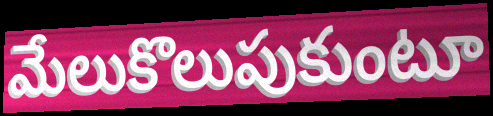
మేలుకొలుపుకుంటూ